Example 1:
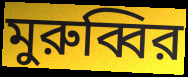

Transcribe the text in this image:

মুরুব্বির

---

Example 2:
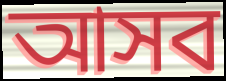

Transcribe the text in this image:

আসব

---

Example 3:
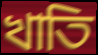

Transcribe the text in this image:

খাতি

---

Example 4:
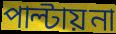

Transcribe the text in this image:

পাল্টায়না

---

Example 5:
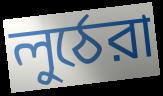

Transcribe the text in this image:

লুঠেরা